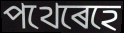
পথেৰেহে